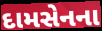
દામસેનના